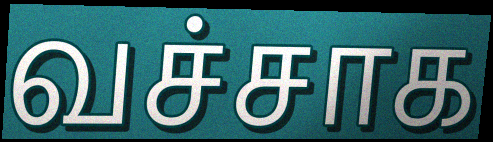
வச்சாக